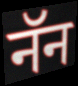
नॅन